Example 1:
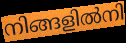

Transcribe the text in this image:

നിങ്ങളിൽനി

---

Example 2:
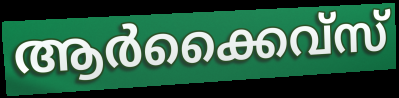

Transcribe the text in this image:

ആർക്കൈവ്സ്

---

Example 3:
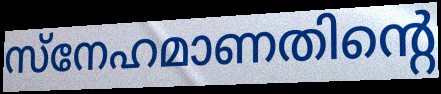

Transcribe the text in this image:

സ്നേഹമാണതിന്റെ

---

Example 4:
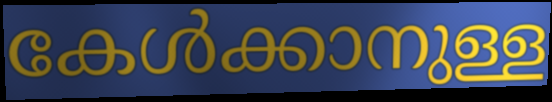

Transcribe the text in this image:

കേൾക്കാനുള്ള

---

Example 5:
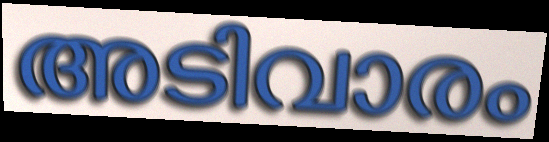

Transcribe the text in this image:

അടിവാരം